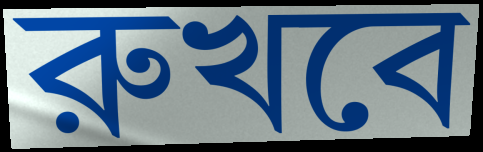
রুখবে